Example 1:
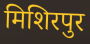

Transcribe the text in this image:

मिशिरपुर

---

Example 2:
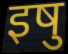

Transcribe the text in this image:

इषु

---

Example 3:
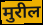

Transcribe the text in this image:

मुरील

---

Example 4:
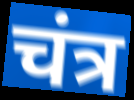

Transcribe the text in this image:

चंत्र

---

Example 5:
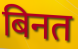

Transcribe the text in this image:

बिनत